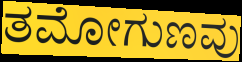
ತಮೋಗುಣವು